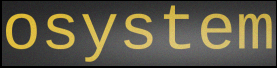
osystem